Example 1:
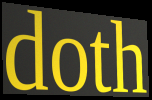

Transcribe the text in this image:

doth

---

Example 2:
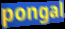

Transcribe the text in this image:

pongal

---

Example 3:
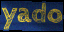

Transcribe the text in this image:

yado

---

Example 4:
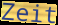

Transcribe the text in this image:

Zeit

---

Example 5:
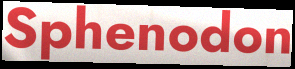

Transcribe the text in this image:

Sphenodon